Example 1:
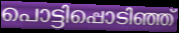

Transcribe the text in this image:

പൊട്ടിപ്പൊടിഞ്ഞ്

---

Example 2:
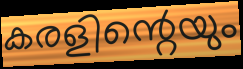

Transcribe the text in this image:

കരളിന്റെയും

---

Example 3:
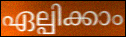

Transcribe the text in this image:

ഏല്പിക്കാം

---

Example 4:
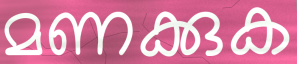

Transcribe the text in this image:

മണക്കുക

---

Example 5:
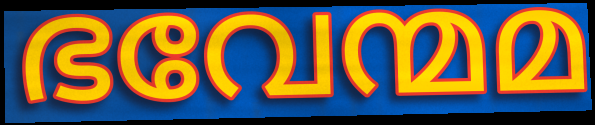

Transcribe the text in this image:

ഭവേന്മമ